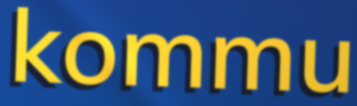
kommu